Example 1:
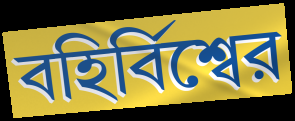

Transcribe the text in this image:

বহির্বিশ্বের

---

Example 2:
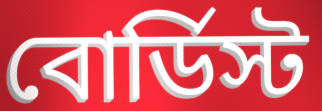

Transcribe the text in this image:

বোর্ডিস্ট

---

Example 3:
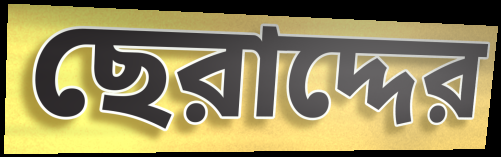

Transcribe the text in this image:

ছেরাদ্দের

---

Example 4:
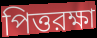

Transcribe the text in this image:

পিত্তরক্ষা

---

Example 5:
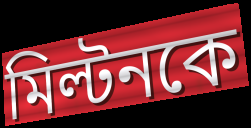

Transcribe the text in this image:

মিল্টনকে